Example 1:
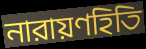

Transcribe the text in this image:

নারায়ণহিতি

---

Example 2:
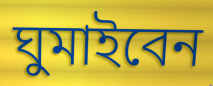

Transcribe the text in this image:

ঘুমাইবেন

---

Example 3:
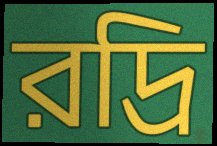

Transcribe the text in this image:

রদ্রি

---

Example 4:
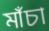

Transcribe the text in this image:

মাঁচা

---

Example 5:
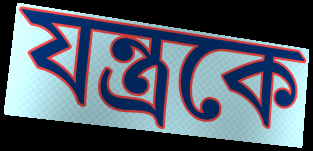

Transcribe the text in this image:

যন্ত্রকে